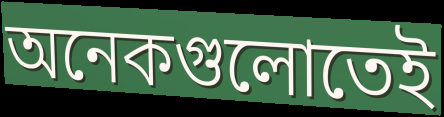
অনেকগুলোতেই